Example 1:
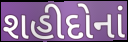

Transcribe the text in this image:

શહીદોનાં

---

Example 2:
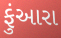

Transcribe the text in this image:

ફુંઆરા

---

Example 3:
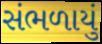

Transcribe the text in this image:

સંભળાયું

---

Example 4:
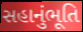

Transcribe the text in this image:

સહાનુંભૂતિ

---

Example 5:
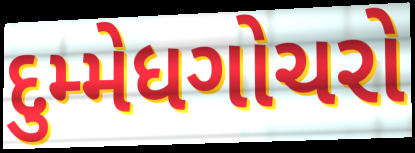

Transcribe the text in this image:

દુમ્મેધગોચરો